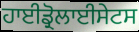
ਹਾਈਡ੍ਰੋਲਾਈਸੇਟਸ